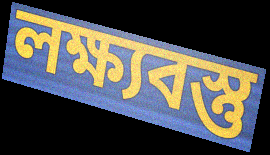
লক্ষ্যবস্তু